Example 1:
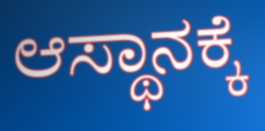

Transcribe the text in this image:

ಆಸ್ಥಾನಕ್ಕೆ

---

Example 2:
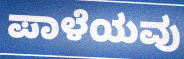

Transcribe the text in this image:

ಪಾಳೆಯವು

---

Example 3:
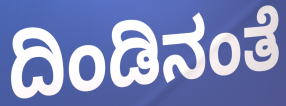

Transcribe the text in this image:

ದಿಂಡಿನಂತೆ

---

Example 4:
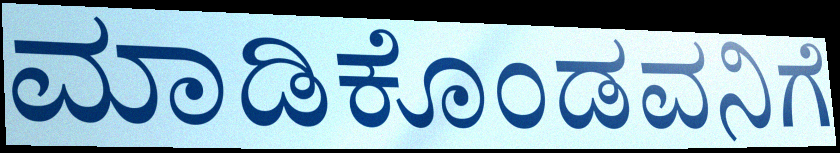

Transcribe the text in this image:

ಮಾಡಿಕೊಂಡವನಿಗೆ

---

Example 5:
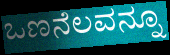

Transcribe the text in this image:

ಒಣನೆಲವನ್ನೂ